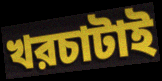
খরচাটাই